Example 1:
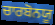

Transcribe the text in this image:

ਚਾਰਬੋਨਯੂ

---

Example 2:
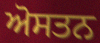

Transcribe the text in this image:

ਅੋਸਤਨ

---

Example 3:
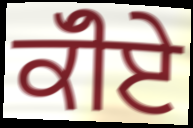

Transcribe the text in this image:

ਕੱੀਏ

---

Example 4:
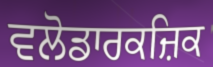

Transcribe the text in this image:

ਵਲੋਡਾਰਕਜ਼ਿਕ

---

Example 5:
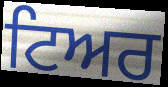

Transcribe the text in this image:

ਟਿਅਰ